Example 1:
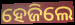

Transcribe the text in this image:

ହେଜିଲେ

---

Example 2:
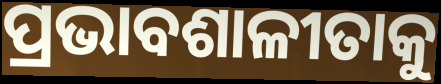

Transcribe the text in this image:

ପ୍ରଭାବଶାଳୀତାକୁ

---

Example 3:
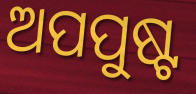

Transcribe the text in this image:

ଅପପୁଷ୍ଟ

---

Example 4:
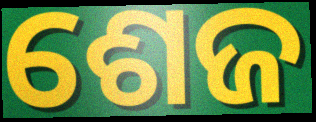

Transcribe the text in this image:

ଶେଜ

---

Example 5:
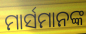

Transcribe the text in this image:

ମାର୍ସମାନଙ୍କ